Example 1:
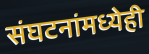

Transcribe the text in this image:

संघटनांमध्येही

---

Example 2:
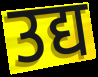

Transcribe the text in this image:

उद्य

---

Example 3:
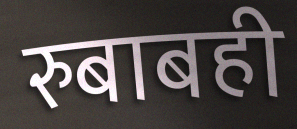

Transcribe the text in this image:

रुबाबही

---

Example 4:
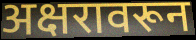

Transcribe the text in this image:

अक्षरावरून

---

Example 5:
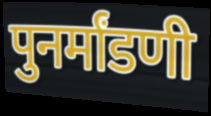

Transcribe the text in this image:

पुनर्मांडणी